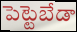
పెట్టెబేడా